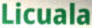
Licuala